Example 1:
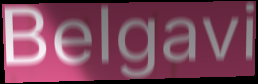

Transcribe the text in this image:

Belgavi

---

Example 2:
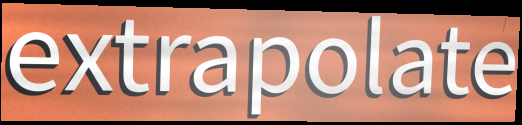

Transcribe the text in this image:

extrapolate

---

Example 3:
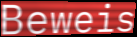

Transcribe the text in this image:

Beweis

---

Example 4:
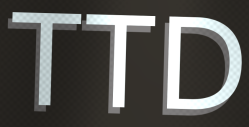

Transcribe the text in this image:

TTD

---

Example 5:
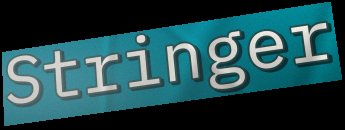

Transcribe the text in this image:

Stringer